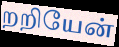
றறியேன்